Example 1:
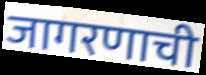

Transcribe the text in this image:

जागरणाची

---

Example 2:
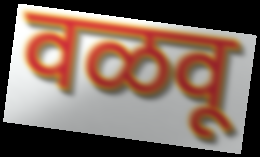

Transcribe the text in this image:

वळवू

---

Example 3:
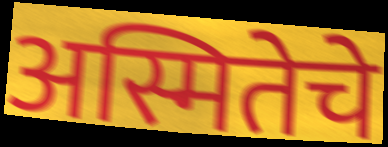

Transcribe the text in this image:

अस्मितेचे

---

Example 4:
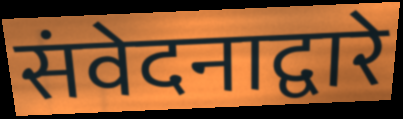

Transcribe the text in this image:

संवेदनाद्वारे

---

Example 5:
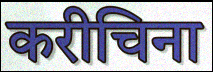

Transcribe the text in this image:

करीचिना